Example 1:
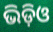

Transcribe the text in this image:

ଭିଡ଼ିଓ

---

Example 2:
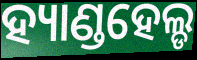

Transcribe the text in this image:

ହ୍ୟାଣ୍ଡହେଲ୍ଡ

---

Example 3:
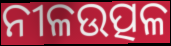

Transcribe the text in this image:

ନୀଳଉତ୍ପଳ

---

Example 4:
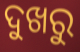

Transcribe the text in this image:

ଦୁଖରୁ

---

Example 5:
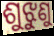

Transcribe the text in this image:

ଶୁଝୁଣୁ